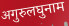
अगुरुलघुनाम